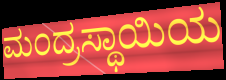
ಮಂದ್ರಸ್ಥಾಯಿಯ